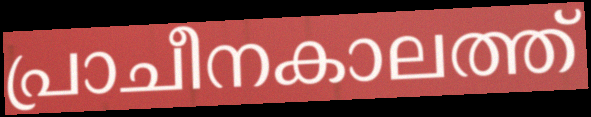
പ്രാചീനകാലത്ത്